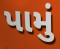
પામું